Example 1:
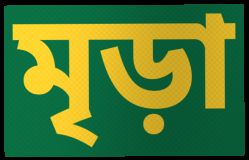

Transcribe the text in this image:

মৃড়া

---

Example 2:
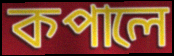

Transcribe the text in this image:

কপালে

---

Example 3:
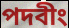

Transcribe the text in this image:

পদবীং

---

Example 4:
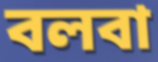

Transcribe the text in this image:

বলবা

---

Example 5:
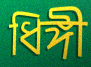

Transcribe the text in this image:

ধিঙ্গী